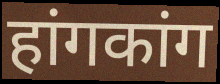
हांगकांग